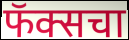
फॅक्सचा